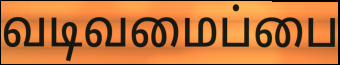
வடிவமைப்பை